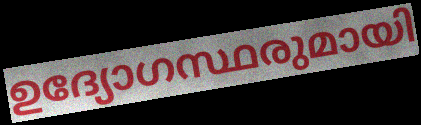
ഉദ്യോഗസ്ഥരുമായി